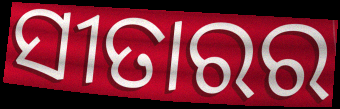
ସୀତାରର